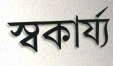
স্বকার্য্য